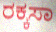
ರಕ್ಕಸಾ